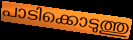
പാടിക്കൊടുത്തു